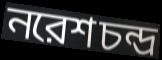
নরেশচন্দ্র